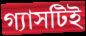
গ্যাসটিই